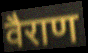
वैराण